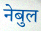
नेबुल